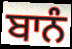
ਬਾਨੰ